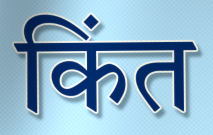
किंत